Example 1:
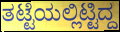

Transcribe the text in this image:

ತಟ್ಟೆಯಲ್ಲಿಟ್ಟಿದ್ದ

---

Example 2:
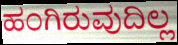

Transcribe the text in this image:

ಹಂಗಿರುವುದಿಲ್ಲ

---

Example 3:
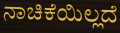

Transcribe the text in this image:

ನಾಚಿಕೆಯಿಲ್ಲದೆ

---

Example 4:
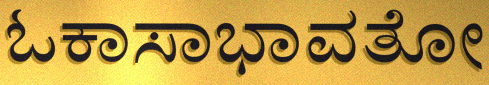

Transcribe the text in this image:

ಓಕಾಸಾಭಾವತೋ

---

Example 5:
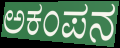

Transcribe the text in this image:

ಅಕಂಪನ